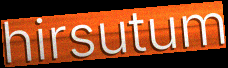
hirsutum